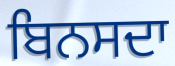
ਬਿਨਸਦਾ